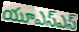
యూఎస్ఎస్